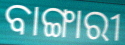
ବାଙ୍ଗାରୀ